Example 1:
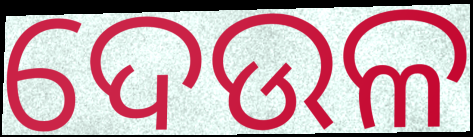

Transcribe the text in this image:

ଦେଉଳ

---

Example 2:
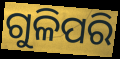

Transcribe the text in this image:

ଗୁଳିପରି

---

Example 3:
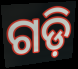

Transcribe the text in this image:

ଗଡ଼ି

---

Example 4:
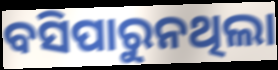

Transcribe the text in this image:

ବସିପାରୁନଥିଲା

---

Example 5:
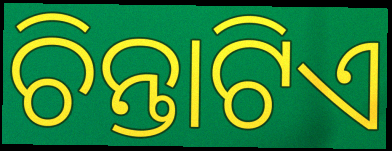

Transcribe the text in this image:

ଚିନ୍ତାଟିଏ